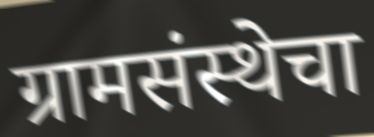
ग्रामसंस्थेचा